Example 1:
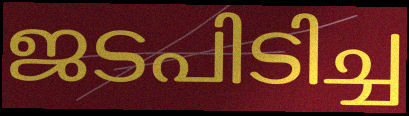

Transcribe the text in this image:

ജടപിടിച്ച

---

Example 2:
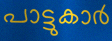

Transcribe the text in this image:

പാട്ടുകാർ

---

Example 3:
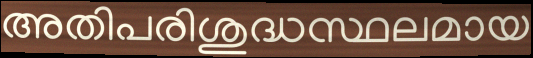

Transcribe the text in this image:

അതിപരിശുദ്ധസ്ഥലമായ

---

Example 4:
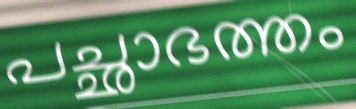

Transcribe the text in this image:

പച്ഛാഭത്തം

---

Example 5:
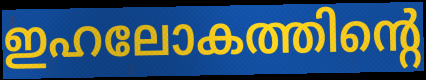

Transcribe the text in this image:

ഇഹലോകത്തിന്റെ